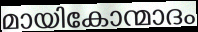
മായികോന്മാദം